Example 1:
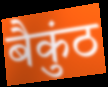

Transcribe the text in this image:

बैकुंठ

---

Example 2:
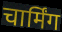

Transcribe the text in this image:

चार्मिंग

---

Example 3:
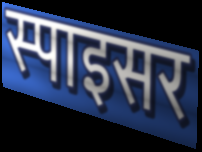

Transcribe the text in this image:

स्पाइसर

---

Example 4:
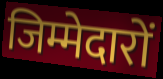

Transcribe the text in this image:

जिम्मेदारों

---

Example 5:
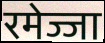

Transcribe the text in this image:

रमेज्जा